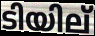
ടിയില്